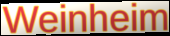
Weinheim